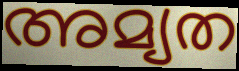
അമ്യത